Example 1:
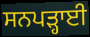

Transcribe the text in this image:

ਸਨਪੜ੍ਹਾਈ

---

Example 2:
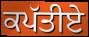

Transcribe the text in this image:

ਕਪੱਤੀਏ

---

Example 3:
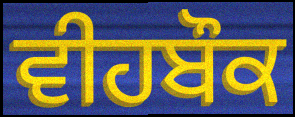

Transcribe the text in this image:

ਵੀਹਬੌਕ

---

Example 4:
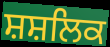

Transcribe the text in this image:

ਸ਼ਸ਼ਲਿਕ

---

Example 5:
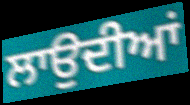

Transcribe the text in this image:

ਲਾਉਦੀਆਂ